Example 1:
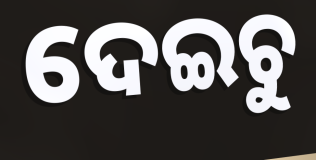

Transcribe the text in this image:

ଦେଇଚୁ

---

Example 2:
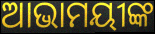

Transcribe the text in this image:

ଆଭାମୟୀଙ୍କ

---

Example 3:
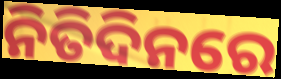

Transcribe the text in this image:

ନିତିଦିନରେ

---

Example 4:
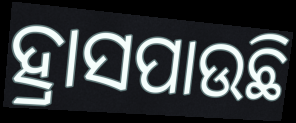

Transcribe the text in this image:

ହ୍ରାସପାଉଛି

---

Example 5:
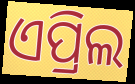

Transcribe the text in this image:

ଏପ୍ରିଲ